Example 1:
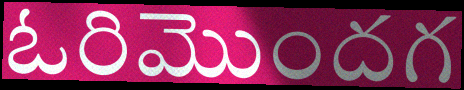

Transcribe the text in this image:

ఓరిమొందగ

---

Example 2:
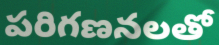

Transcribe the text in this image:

పరిగణనలతో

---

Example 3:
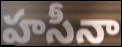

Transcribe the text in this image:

హసీనా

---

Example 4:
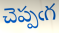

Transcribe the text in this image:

చెప్పఁగ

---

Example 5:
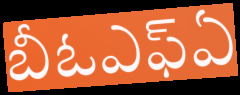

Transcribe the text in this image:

బీఓఎఫ్ఏ